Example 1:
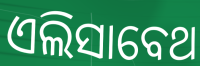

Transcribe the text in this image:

ଏଲିସାବେଥ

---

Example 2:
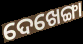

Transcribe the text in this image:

ଦେଖେଙ୍ଗା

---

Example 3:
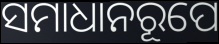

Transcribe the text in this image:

ସମାଧାନରୂପେ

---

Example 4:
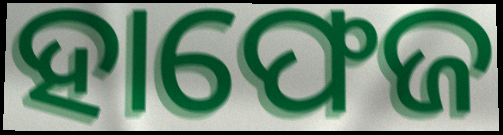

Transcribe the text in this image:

ହାଫେଜ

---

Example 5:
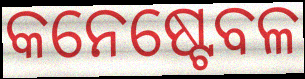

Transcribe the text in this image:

କନେଷ୍ଟେବଳ